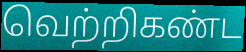
வெற்றிகண்ட